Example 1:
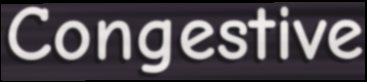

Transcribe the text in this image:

Congestive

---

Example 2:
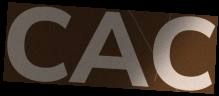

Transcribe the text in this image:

CAC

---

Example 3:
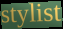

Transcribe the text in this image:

stylist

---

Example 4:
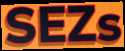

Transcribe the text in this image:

SEZs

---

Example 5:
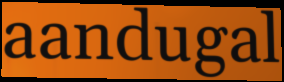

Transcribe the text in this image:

aandugal